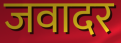
जवादर